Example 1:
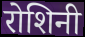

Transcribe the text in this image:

रोशिनी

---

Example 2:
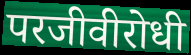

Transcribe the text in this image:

परजीवीरोधी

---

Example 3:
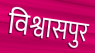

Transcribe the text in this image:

विश्वासपुर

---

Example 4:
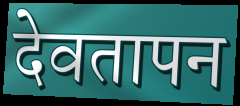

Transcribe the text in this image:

देवतापन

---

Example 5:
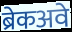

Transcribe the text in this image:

ब्रेकअवे